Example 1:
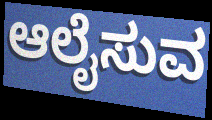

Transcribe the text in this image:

ಆಲೈಸುವ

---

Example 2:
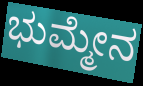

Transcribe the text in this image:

ಭುಮ್ಮೇನ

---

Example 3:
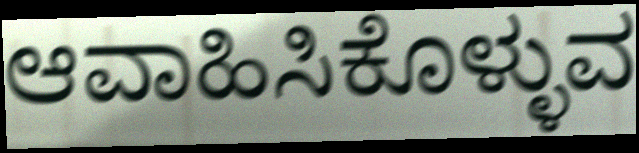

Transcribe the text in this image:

ಆವಾಹಿಸಿಕೊಳ್ಳುವ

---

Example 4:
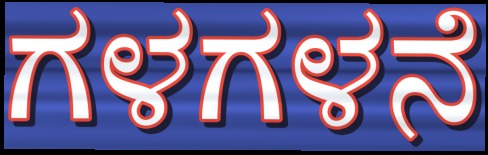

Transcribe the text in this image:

ಗಳಗಳನೆ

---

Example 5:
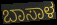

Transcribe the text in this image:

ಬಾಸಾಳ